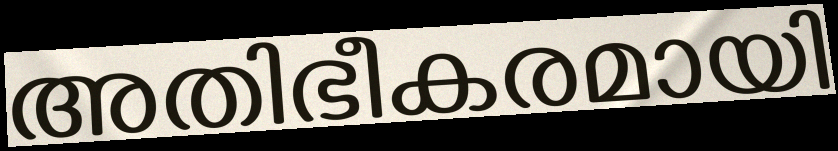
അതിഭീകരമായി